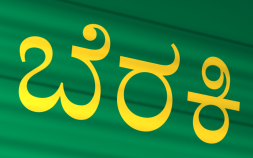
ಬೆರಕಿ